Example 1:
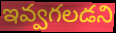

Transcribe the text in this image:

ఇవ్వగలడని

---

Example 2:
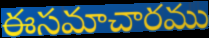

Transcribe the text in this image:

ఈసమాచారము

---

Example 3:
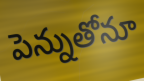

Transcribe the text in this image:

పెన్నుతోనూ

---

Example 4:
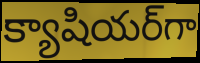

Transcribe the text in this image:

క్యాషియర్‌గా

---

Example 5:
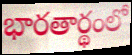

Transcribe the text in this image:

భారతార్థంలో